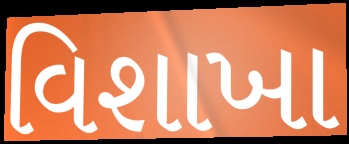
વિશાખા